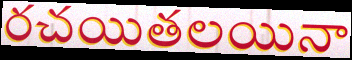
రచయితలయినా